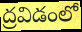
ద్రవిడంలో